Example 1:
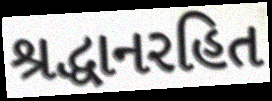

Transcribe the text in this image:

શ્રદ્ધાનરહિત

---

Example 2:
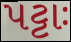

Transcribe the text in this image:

પટ્ટાઃ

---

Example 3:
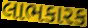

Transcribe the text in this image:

લાભકારક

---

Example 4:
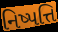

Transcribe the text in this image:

નિષ્પત્તિ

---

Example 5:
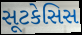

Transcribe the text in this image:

સૂટકેસિસ